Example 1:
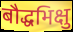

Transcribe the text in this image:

बौद्धभिक्षु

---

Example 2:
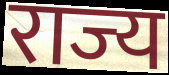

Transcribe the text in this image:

राज्‍य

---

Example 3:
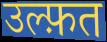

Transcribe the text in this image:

उल्फ़त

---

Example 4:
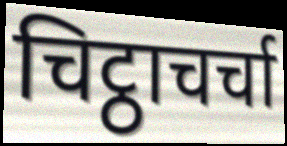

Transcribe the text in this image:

चिट्ठाचर्चा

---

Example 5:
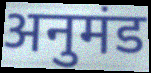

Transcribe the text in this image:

अनुमंड